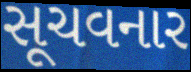
સૂચવનાર